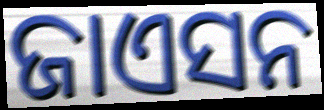
ଜାଏସନ